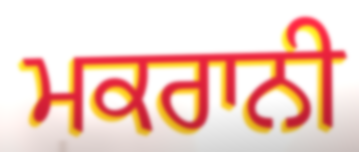
ਮਕਰਾਨੀ